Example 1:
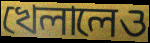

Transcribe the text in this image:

খেলালেও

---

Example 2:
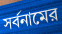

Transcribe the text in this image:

সর্বনামের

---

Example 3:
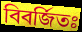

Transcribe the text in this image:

বিবর্জিতঃ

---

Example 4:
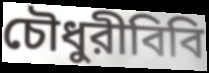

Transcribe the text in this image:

চৌধুরীবিবি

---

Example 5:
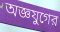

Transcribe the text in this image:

অজ্ঞযুগের